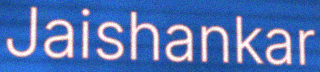
Jaishankar